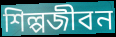
শিল্পজীবন